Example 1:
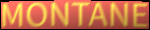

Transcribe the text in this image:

MONTANE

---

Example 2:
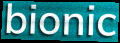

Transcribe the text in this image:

bionic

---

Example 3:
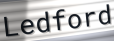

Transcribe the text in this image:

Ledford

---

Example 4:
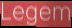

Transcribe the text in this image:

Legem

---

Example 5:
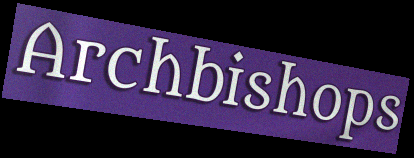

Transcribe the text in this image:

Archbishops